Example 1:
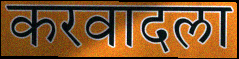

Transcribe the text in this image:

करवादला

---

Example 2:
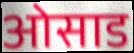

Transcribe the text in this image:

ओसाड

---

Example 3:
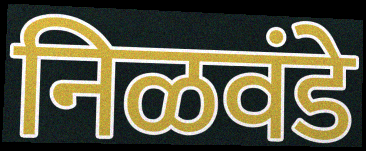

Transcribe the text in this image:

निळवंडे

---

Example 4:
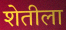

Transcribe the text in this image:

शेतीला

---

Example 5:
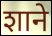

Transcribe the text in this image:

शाने